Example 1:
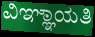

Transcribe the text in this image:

ವಿಞ್ಞಾಯತಿ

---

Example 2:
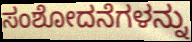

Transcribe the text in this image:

ಸಂಶೋದನೆಗಳನ್ನು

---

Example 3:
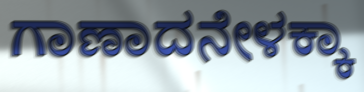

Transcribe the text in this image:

ಗಾಣಾದನೇಳಕ್ಕಾ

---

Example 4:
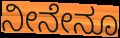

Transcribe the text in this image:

ನೀನೇನೂ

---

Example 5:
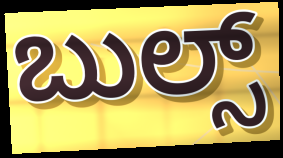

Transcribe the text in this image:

ಬುಲ್ಸ್